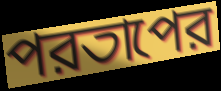
পরতাপের